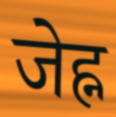
जेह्न